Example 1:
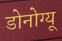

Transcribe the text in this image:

डोनोग्यू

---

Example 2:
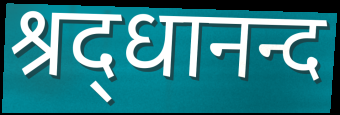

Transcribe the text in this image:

श्रद्धानन्द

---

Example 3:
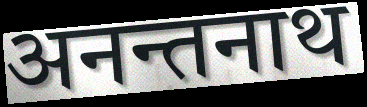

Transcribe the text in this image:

अनन्तनाथ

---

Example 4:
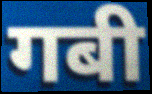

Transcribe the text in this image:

गबी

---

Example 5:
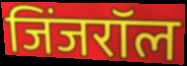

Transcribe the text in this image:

जिंजरॉल